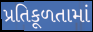
પ્રતિકૂળતામાં